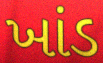
ખાંડ